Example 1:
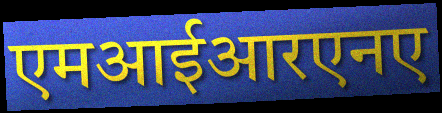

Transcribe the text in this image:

एमआईआरएनए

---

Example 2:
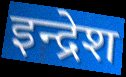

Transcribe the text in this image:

इन्द्रेश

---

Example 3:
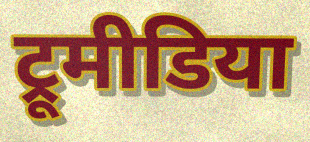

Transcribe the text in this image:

ट्रूमीडिया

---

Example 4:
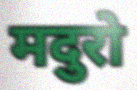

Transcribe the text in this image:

मदुरो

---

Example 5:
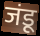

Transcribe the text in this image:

जंडू